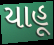
યાહૂ